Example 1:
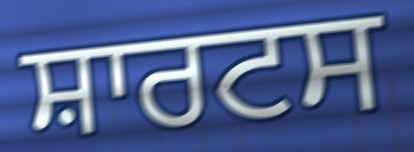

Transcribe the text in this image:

ਸ਼ਾਰਟਸ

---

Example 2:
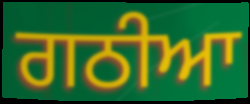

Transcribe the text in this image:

ਗਠੀਆ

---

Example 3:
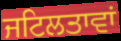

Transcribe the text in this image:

ਜਟਿਲਤਾਵਾਂ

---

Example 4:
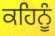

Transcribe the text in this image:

ਕਹਿਨੂੰ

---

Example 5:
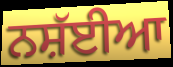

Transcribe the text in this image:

ਨਸ਼ੱਈਆ